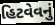
હિટવેવનું